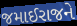
જમાઈરાજને